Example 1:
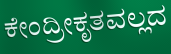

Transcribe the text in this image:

ಕೇಂದ್ರೀಕೃತವಲ್ಲದ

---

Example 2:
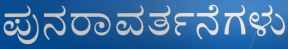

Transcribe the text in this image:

ಪುನರಾವರ್ತನೆಗಳು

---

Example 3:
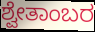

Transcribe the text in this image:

ಶ್ವೇತಾಂಬರ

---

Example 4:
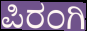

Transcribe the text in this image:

ಪಿರಂಗಿ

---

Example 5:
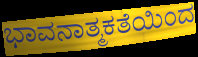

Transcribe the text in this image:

ಭಾವನಾತ್ಮಕತೆಯಿಂದ